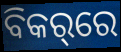
ବିକର୍‌ରେ